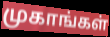
முகாங்கள்